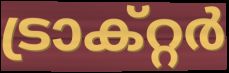
ട്രാക്റ്റർ